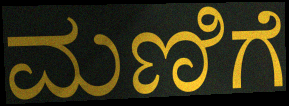
ಮಣಿಗೆ